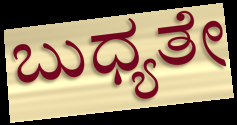
ಬುಧ್ಯತೇ